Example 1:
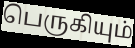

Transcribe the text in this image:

பெருகியும்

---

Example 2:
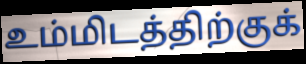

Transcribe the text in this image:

உம்மிடத்திற்குக்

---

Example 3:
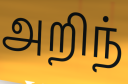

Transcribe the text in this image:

அறிந்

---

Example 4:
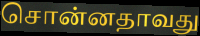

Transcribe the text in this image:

சொன்னதாவது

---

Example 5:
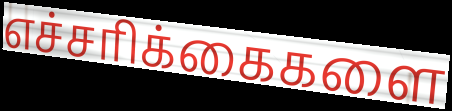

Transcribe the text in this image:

எச்சரிக்கைகளை